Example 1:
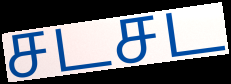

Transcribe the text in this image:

சடசட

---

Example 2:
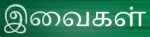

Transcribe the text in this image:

இவைகள்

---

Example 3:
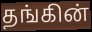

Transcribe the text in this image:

தங்கின்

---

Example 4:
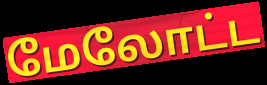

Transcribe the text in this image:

மேலோட்ட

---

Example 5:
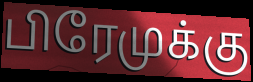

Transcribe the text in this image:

பிரேமுக்கு